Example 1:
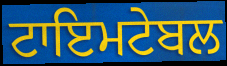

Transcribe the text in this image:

ਟਾਇਮਟੇਬਲ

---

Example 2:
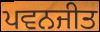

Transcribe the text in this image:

ਪਵਨਜੀਤ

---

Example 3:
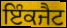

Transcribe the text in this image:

ਇੰਕਜੈਟ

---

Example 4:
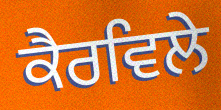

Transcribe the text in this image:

ਕੈਰਵਿਲੇ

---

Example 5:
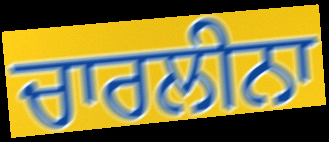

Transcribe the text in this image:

ਚਾਰਲੀਨਾ